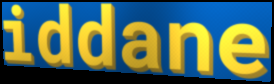
iddane